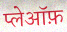
प्लेऑफ़